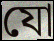
যো